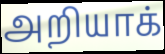
அறியாக்